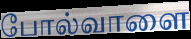
போல்வாளை